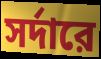
সর্দারে